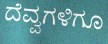
ದೆವ್ವಗಳಿಗೂ